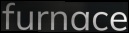
furnace